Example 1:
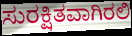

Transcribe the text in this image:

ಸುರಕ್ಷಿತವಾಗಿರಲಿ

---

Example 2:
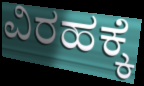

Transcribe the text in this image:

ವಿರಹಕ್ಕೆ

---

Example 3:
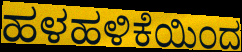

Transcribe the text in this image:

ಹಳಹಳಿಕೆಯಿಂದ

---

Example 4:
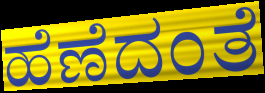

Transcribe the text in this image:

ಹೆಣೆದಂತೆ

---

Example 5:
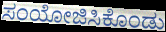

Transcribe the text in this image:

ಸಂಯೋಜಿಸಿಕೊಂಡು